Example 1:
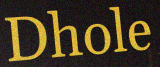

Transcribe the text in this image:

Dhole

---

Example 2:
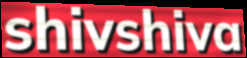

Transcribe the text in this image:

shivshiva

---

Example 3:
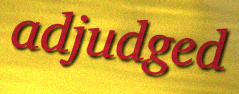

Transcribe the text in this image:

adjudged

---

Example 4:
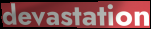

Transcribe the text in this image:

devastation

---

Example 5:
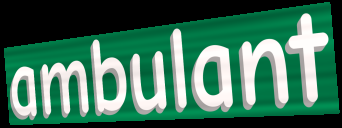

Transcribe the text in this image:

ambulant